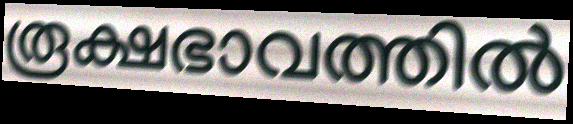
രൂക്ഷഭാവത്തിൽ